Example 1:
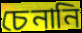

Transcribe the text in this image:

চেনানি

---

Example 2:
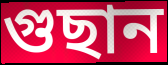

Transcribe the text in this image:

গুছান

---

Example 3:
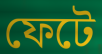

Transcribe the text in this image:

ফেটে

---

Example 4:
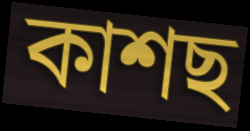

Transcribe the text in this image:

কাশছ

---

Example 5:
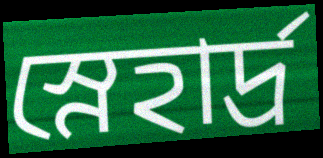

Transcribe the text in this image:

স্নেহার্দ্র